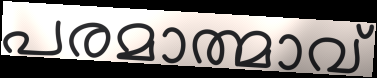
പരമാത്മാവ്